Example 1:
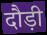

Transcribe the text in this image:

दौड़ी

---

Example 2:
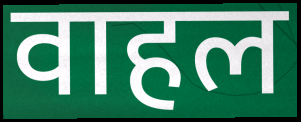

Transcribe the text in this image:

वाहल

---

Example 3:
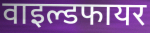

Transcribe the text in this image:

वाइल्डफायर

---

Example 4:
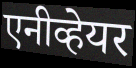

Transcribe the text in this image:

एनीव्हेयर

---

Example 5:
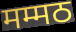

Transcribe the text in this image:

मम्मठ